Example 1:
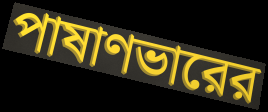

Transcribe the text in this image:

পাষাণভারের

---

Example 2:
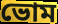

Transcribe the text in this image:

ভোম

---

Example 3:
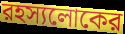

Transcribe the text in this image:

রহস্যলোকের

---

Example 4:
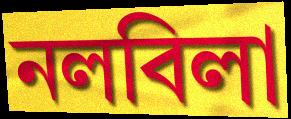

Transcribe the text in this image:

নলবিলা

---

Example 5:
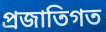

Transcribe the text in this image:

প্রজাতিগত